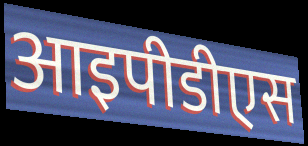
आइपीडीएस